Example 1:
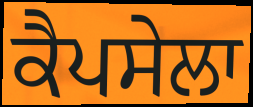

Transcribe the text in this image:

ਕੈਪਸੇਲਾ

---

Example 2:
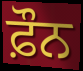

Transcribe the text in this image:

ਫ਼ੌਨ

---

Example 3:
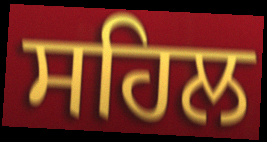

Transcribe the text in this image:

ਸਹਿਲ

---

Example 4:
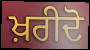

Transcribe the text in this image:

ਖ਼ਰੀਦੋ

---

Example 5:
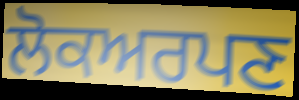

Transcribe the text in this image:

ਲੋਕਅਰਪਣ